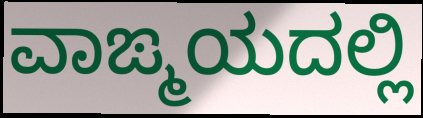
ವಾಙ್ಮಯದಲ್ಲಿ